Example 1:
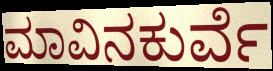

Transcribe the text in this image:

ಮಾವಿನಕುರ್ವೆ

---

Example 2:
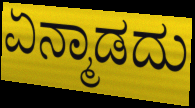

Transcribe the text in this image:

ಏನ್ಮಾಡದು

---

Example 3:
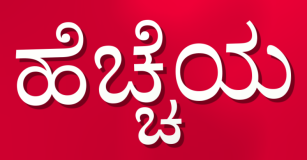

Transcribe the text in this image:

ಹೆಚ್ಚೆಯ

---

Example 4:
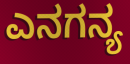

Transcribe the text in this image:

ಎನಗನ್ಯ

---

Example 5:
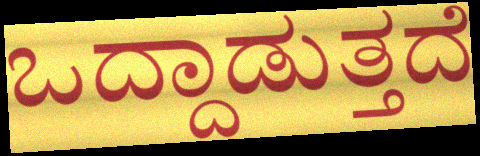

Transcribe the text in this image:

ಒದ್ದಾಡುತ್ತದೆ